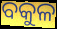
ବକୁଳ